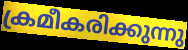
ക്രമീകരിക്കുന്നു